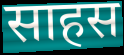
साहस